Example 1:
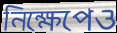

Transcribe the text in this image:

নিক্ষেপেও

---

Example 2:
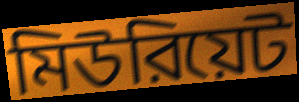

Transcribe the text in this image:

মিউরিয়েট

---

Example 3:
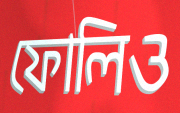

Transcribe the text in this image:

ফোলিও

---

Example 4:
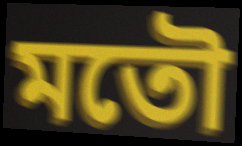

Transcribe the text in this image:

মতৌ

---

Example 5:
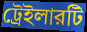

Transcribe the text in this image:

ট্রেইলারটি